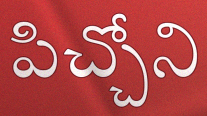
పిచ్చోని